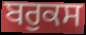
ਬਰੁਕਸ